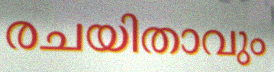
രചയിതാവും